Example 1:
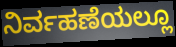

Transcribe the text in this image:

ನಿರ್ವಹಣೆಯಲ್ಲೂ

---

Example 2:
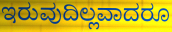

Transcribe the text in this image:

ಇರುವುದಿಲ್ಲವಾದರೂ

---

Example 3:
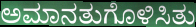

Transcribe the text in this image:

ಅಮಾನತುಗೊಳಿಸಿತು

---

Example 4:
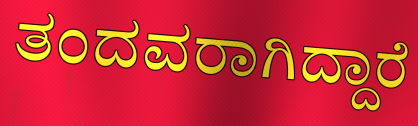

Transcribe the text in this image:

ತಂದವರಾಗಿದ್ದಾರೆ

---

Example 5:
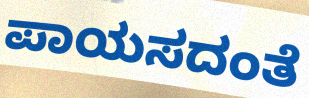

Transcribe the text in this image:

ಪಾಯಸದಂತೆ